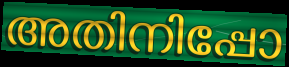
അതിനിപ്പോ